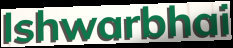
Ishwarbhai